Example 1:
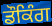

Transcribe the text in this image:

ਡੌਕਿੰਗ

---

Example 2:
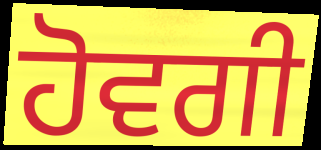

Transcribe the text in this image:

ਹੋਵਗੀ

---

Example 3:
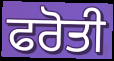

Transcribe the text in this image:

ਫਰੋਤੀ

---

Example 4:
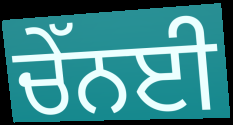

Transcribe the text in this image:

ਚੇੱਨਈ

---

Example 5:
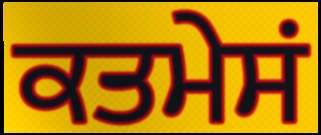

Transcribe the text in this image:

ਕਤਮੇਸਂ